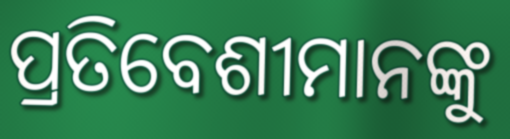
ପ୍ରତିବେଶୀମାନଙ୍କୁ